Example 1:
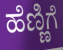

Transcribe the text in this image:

ಹೆಣ್ಣಿಗೆ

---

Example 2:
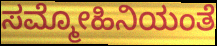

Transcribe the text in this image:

ಸಮ್ಮೋಹಿನಿಯಂತೆ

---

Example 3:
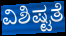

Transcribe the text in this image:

ವಿಶಿಷ್ಟತೆ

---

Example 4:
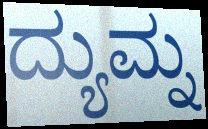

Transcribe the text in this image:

ದ್ಯುಮ್ನ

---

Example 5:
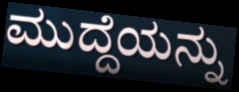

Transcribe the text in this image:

ಮುದ್ದೆಯನ್ನು